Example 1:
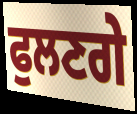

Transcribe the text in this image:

ਫੁਲਣਗੇ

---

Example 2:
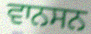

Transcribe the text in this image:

ਵਾਨਸਨ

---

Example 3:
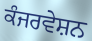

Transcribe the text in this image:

ਕੰਜਰਵੇਸ਼ਨ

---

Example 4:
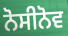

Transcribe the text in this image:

ਨੋਸੀਨੋਵ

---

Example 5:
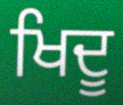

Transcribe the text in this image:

ਖਿਦੂ